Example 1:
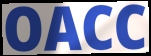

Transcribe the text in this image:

OACC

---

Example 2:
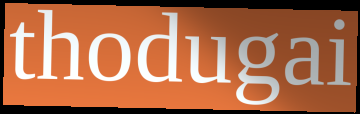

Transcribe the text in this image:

thodugai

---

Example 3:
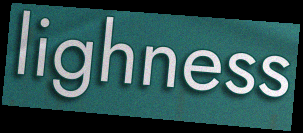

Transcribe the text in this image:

lighness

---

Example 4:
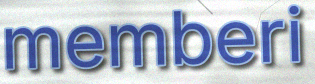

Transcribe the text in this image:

memberi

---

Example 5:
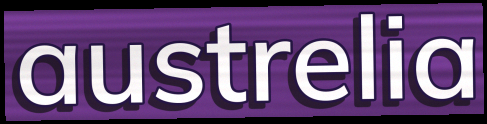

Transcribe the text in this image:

austrelia